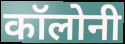
कॉलोनी